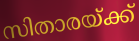
സിതാരയ്ക്ക്